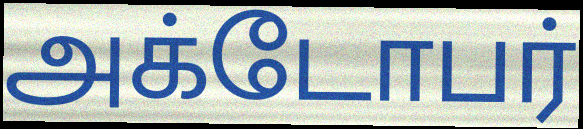
அக்டோபர்